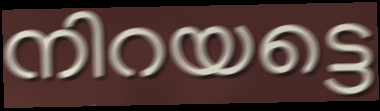
നിറയട്ടെ